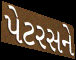
પેટરસને